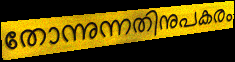
തോന്നുന്നതിനുപകരം